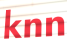
knn